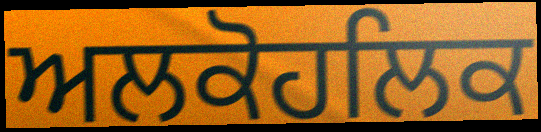
ਅਲਕੋਹਲਿਕ